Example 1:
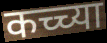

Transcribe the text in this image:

कच्च्या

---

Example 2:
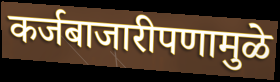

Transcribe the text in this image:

कर्जबाजारीपणामुळे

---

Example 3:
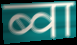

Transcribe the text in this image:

ब्वा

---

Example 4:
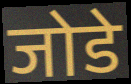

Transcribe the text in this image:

जोडे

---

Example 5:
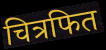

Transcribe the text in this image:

चित्रफित